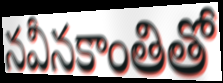
నవీనకాంతితో